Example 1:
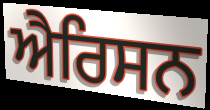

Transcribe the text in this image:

ਐਰਿਸਨ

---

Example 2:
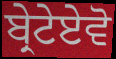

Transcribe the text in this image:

ਬ੍ਰੇਟੇਏਵੋ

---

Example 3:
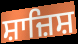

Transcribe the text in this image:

ਸ਼ਾਜ਼ਿਸ਼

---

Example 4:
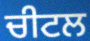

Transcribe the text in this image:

ਚੀਟਲ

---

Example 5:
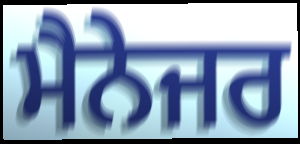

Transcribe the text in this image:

ਮੈਨੇਜਰ